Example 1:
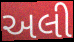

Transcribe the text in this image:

અલી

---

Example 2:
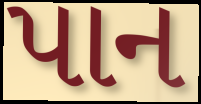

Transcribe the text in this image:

પાન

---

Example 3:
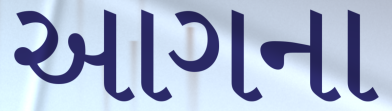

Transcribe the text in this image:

આગના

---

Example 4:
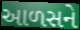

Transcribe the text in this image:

આળસને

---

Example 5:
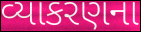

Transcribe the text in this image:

વ્યાકરણના